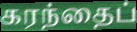
கரந்தைப்